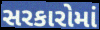
સરકારોમાં